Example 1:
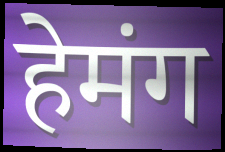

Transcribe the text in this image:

हेमंग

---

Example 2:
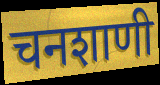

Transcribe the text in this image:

चनशाणी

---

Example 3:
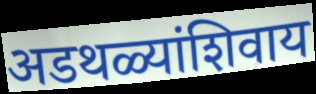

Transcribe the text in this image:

अडथळ्यांशिवाय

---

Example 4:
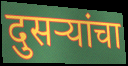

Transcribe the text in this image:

दुसऱ्यांचा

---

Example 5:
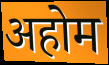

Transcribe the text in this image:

अहोम